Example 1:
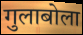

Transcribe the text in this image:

गुलाबोला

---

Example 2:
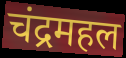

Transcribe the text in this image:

चंद्रमहल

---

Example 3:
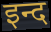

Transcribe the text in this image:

इन्द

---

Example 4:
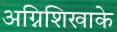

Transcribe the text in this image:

अग्निशिखाके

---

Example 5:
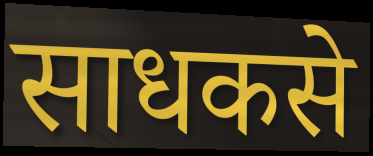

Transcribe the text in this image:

साधकसे